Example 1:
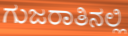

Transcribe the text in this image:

ಗುಜರಾತಿನಲ್ಲಿ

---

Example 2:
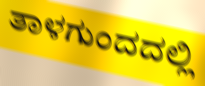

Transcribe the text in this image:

ತಾಳಗುಂದದಲ್ಲಿ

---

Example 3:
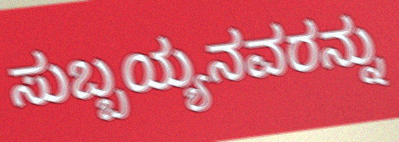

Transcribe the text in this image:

ಸುಬ್ಬಯ್ಯನವರನ್ನು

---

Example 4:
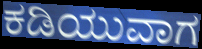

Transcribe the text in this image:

ಕಡಿಯುವಾಗ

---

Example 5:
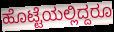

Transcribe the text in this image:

ಹೊಟ್ಟೆಯಲ್ಲಿದ್ದರೂ